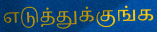
எடுத்துக்குங்க